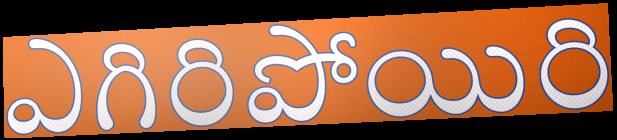
ఎగిరిపోయిరి